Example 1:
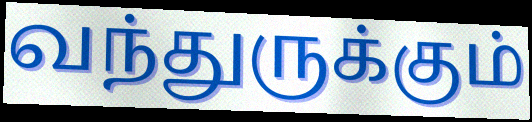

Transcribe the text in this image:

வந்துருக்கும்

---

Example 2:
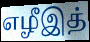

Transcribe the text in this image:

எழீஇத்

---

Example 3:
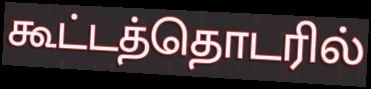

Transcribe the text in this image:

கூட்டத்தொடரில்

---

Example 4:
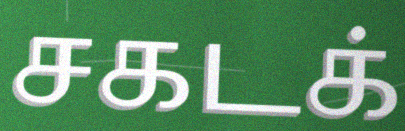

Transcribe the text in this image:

சகடக்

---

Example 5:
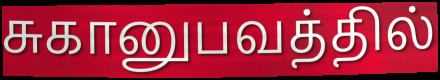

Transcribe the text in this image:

சுகானுபவத்தில்